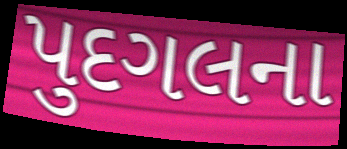
પુદગલના